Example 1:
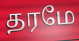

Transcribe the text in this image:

தரமே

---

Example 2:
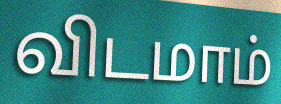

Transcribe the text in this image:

விடமாம்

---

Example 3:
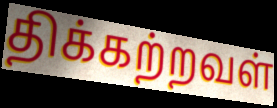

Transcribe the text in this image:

திக்கற்றவள்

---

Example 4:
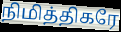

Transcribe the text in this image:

நிமித்திகரே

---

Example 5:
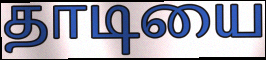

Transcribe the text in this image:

தாடியை